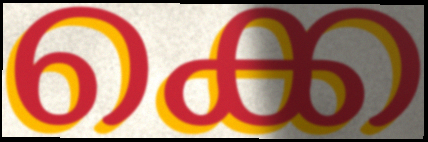
ക്കെ